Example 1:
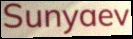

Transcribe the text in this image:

Sunyaev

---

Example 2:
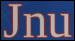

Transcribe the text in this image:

Jnu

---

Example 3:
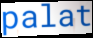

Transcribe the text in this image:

palat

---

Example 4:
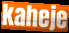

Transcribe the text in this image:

kaheje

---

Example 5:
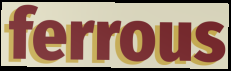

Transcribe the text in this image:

ferrous